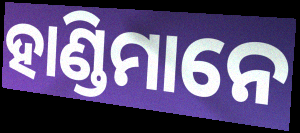
ହାଣ୍ଡିମାନେ